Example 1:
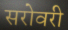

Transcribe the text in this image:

सरोवरी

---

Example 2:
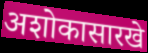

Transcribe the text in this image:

अशोकासारखे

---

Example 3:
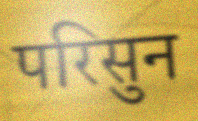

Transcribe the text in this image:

परिसुन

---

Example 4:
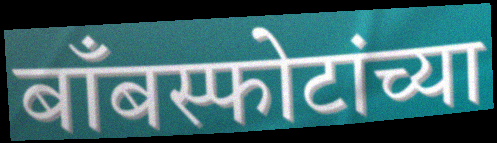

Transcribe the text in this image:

बॉंबस्फोटांच्या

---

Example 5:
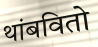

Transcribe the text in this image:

थांबवितो